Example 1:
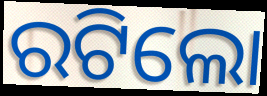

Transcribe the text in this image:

ରଟିଲୋ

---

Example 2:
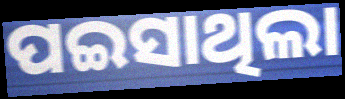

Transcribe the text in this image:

ପଇସାଥିଲା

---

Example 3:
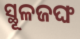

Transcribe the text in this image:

ସ୍ଥୂଳଜଙ୍ଘ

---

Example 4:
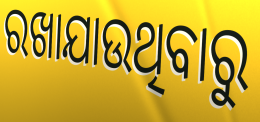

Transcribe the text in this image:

ରଖାଯାଉଥିବାରୁ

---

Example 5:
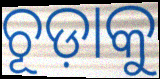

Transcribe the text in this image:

ଚୂଡ଼ାକୁ